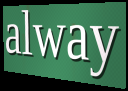
alway